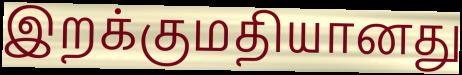
இறக்குமதியானது